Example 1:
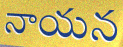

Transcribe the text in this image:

నాయన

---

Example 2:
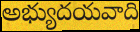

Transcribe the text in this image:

అభ్యుదయవాది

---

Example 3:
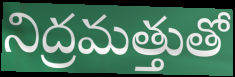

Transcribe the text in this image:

నిద్రమత్తుతో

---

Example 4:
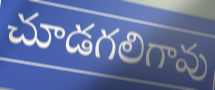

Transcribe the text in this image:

చూడగలిగావు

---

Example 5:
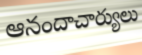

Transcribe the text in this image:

ఆనందాచార్యులు